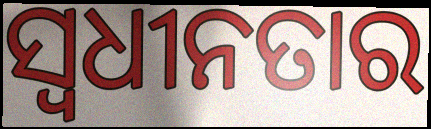
ସ୍ବଧୀନତାର